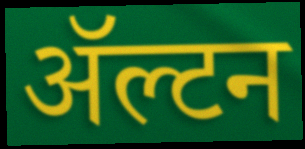
ॲल्टन